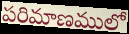
పరిమాణములో